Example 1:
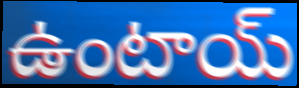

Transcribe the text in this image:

ఉంటాయ్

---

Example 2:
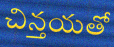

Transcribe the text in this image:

చిన్తయతో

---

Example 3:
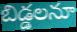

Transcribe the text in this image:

బిడ్డలనూ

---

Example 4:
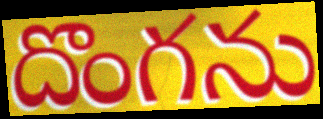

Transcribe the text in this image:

దొంగను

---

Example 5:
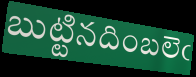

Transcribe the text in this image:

బుట్టినదింబలెఁ